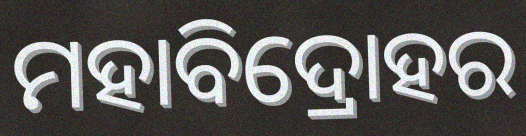
ମହାବିଦ୍ରୋହର